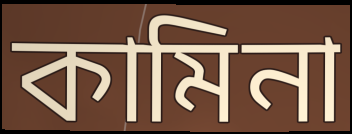
কামিনা